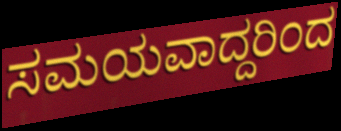
ಸಮಯವಾದ್ದರಿಂದ